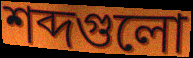
শব্দগুলো